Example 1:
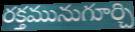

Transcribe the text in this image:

రక్తమునుగూర్చి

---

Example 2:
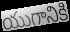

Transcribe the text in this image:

యుగానికి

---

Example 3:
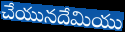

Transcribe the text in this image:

చేయునదేమియు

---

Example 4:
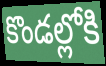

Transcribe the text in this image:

కొండల్లోకి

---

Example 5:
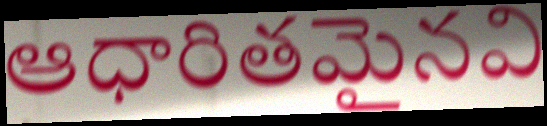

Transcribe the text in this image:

ఆధారితమైనవి